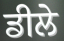
ਡੀਲੇ